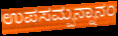
ಉಪಸಮ್ಪನ್ನಾನಂ